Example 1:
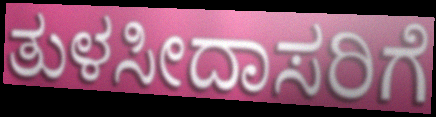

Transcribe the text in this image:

ತುಳಸೀದಾಸರಿಗೆ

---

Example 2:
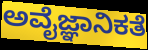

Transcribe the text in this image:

ಅವೈಜ್ಞಾನಿಕತೆ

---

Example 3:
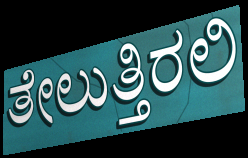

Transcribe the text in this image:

ತೇಲುತ್ತಿರಲಿ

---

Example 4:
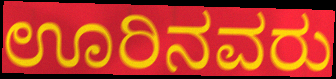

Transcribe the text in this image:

ಊರಿನವರು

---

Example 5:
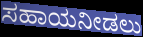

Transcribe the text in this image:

ಸಹಾಯನೀಡಲು